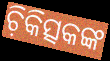
ଚ଼ିକିତ୍ସକଙ୍କ